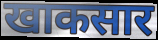
खाकसार